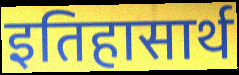
इतिहासार्थ